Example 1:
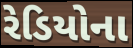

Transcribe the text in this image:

રેડિયોના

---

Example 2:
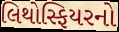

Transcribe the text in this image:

લિથોસ્ફિયરનો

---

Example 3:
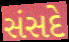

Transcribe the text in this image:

સંસદે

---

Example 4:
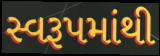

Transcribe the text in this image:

સ્વરૂપમાંથી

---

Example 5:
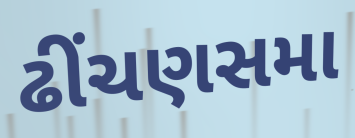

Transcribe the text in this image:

ઢીંચણસમા